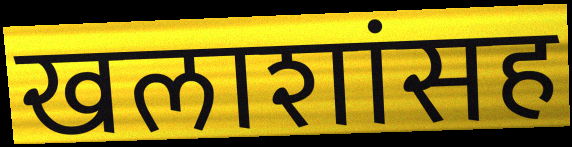
खलाशांसह